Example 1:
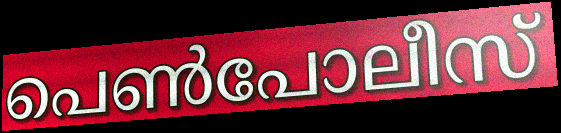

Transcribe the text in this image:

പെൺപോലീസ്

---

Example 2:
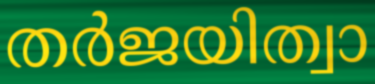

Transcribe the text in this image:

തർജയിത്വാ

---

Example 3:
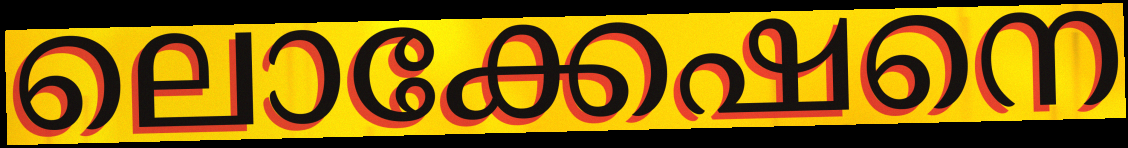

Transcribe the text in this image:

ലൊക്കേഷനെ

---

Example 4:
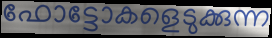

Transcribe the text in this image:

ഫോട്ടോകളെടുക്കുന്ന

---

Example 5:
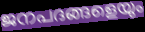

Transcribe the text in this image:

ജനപദങ്ങളെയും